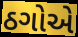
ઠગોએ